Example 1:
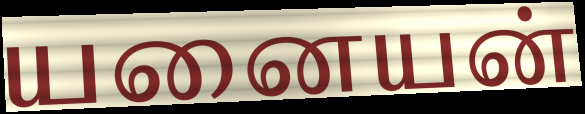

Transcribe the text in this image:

யனையன்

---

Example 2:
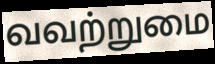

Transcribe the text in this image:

வவற்றுமை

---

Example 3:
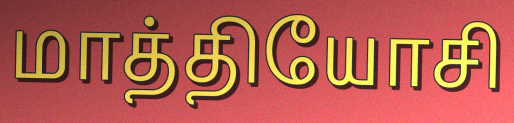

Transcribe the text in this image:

மாத்தியோசி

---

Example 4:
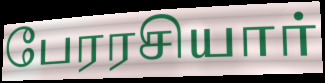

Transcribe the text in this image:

பேரரசியார்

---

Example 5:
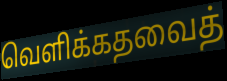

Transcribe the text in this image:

வெளிக்கதவைத்